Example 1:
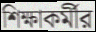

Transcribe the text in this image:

শিক্ষাকর্মীর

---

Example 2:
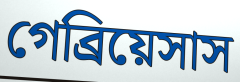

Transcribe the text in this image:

গেব্রিয়েসাস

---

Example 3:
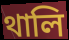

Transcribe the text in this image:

থালি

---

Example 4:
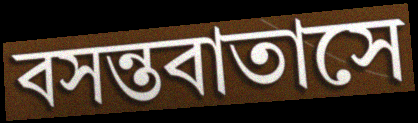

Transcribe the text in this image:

বসন্তবাতাসে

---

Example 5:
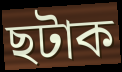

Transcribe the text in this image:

ছটাক